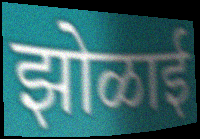
झोळाई